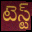
టెస్ట్